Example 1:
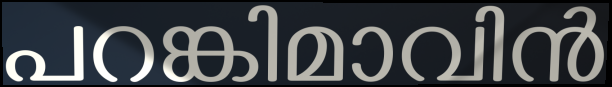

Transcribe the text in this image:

പറങ്കിമാവിൻ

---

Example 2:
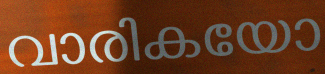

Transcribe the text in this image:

വാരികയോ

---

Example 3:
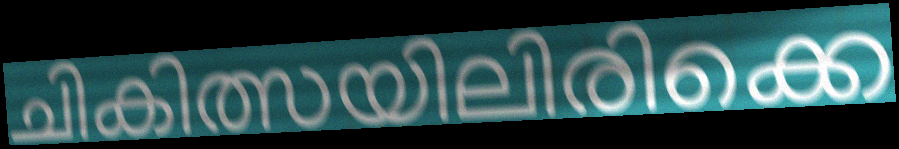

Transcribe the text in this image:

ചികിത്സയിലിരിക്കെ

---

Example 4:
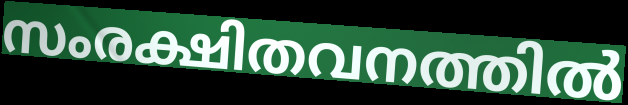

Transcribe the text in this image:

സംരക്ഷിതവനത്തിൽ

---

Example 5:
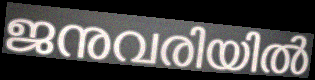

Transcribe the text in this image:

ജനുവരിയിൽ